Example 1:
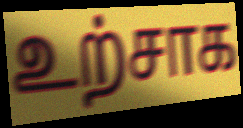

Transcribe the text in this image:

உற்சாக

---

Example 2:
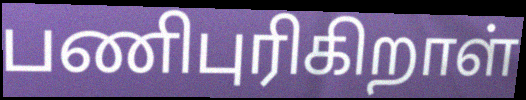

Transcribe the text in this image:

பணிபுரிகிறாள்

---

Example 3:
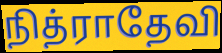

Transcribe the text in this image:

நித்ராதேவி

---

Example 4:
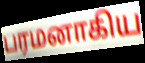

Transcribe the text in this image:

பரமனாகிய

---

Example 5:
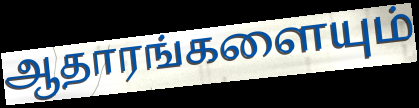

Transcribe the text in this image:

ஆதாரங்களையும்